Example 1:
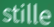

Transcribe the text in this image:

stille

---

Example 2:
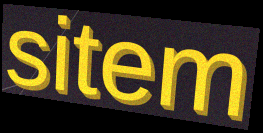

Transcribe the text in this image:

sitem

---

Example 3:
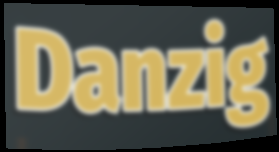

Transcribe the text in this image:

Danzig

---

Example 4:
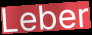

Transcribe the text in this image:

Leber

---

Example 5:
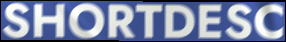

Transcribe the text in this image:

SHORTDESC